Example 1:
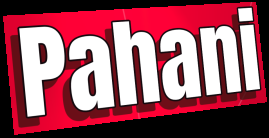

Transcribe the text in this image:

Pahani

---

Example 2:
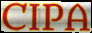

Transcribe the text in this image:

CIPA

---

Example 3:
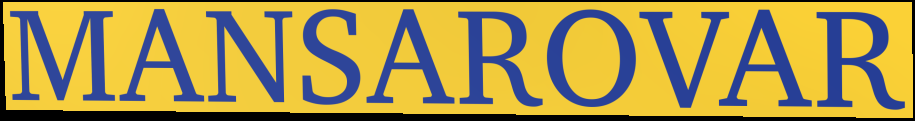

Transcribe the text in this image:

MANSAROVAR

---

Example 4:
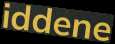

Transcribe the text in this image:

iddene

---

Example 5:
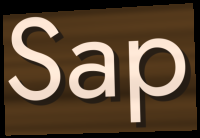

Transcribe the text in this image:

Sap